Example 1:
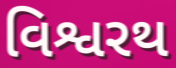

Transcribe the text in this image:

વિશ્વરથ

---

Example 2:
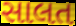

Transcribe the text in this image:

સાલત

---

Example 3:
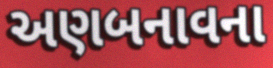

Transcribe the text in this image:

અણબનાવના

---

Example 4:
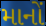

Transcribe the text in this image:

માનોં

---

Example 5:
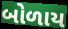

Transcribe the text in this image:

બોળાય